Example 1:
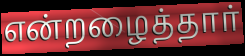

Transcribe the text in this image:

என்றழைத்தார்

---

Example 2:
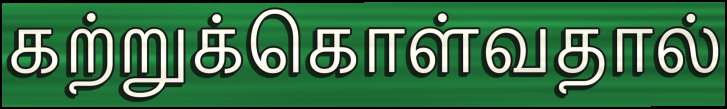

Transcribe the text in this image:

கற்றுக்கொள்வதால்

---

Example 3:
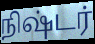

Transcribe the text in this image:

நிஷ்டர்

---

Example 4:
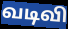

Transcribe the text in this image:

வடிவி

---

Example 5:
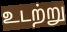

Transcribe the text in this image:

உடற்று